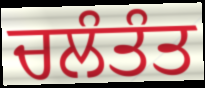
ਚਲੰਤੰਤ